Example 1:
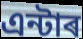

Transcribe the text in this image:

এন্টাৰ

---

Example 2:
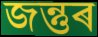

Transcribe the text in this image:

জন্তুৰ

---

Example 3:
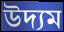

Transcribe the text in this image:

উদ্যম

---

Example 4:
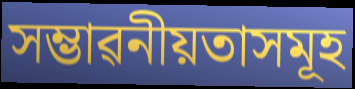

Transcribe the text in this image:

সম্ভাৱনীয়তাসমূহ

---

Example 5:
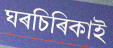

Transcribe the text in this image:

ঘৰচিৰিকাই